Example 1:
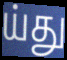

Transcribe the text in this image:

ய்து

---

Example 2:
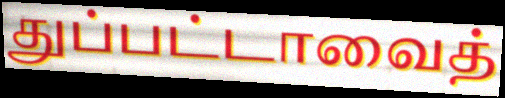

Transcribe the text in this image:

துப்பட்டாவைத்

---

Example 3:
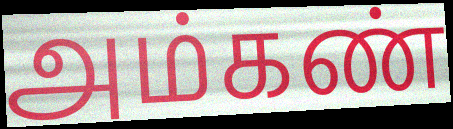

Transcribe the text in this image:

அம்கண்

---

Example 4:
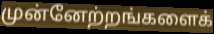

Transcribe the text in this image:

முன்னேற்றங்களைக்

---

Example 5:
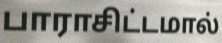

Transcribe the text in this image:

பாராசிட்டமால்